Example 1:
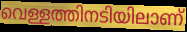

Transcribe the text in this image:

വെള്ളത്തിനടിയിലാണ്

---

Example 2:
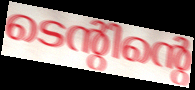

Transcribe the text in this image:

ടെന്റിന്റെ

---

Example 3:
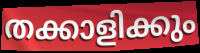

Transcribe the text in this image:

തക്കാളിക്കും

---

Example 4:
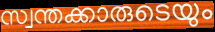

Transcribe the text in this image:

സ്വന്തക്കാരുടെയും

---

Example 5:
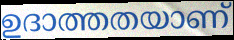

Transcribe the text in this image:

ഉദാത്തതയാണ്